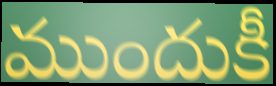
ముందుకీ